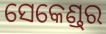
ସେକେଣ୍ଡ୍‌ର